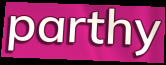
parthy